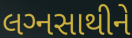
લગ્‍નસાથીને